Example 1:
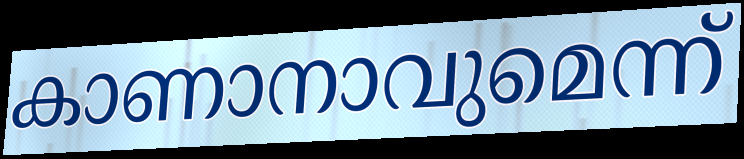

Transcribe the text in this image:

കാണാനാവുമെന്ന്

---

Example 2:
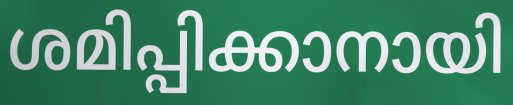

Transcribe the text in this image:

ശമിപ്പിക്കാനായി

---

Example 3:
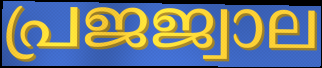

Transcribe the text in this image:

പ്രജജ്വാല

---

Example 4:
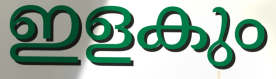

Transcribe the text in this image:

ഇളകും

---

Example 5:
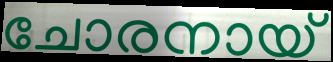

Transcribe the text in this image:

ചോരനായ്